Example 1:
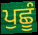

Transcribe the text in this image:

ਪੁਛੂੰ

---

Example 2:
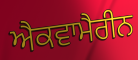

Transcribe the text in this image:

ਐਕਵਾਮੈਰੀਨ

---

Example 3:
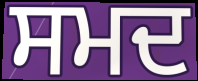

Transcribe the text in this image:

ਸਮਦ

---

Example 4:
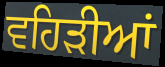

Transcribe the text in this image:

ਵਹਿੜੀਆਂ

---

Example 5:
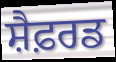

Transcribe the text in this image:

ਸ਼ੈਫ਼ਰਡ